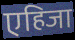
एहिजा